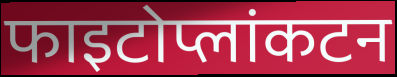
फाइटोप्लांकटन